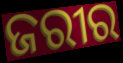
ଜରୀର